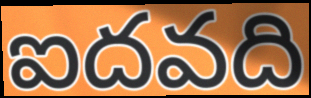
ఐదవది